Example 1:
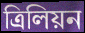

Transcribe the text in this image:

ত্ৰিলিয়ন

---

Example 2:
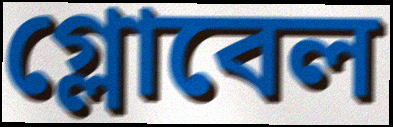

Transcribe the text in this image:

গ্লোবেল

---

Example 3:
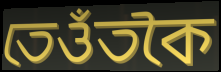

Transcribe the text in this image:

তেওঁতকৈ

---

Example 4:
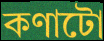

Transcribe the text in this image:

কণাটো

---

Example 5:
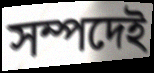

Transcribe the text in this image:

সম্পদেই